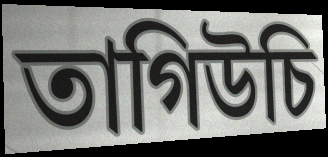
তাগিউচি